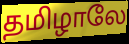
தமிழாலே